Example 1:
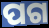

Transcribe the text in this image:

ପଗ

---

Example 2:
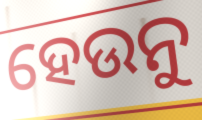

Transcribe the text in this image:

ହେଉନୁ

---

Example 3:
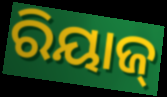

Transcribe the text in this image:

ରିୟାଜ୍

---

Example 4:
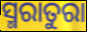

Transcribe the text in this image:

ସ୍ମରାତୁରା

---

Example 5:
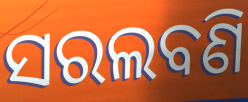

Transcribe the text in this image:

ସରଲବଣି